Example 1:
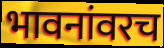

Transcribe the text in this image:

भावनांवरच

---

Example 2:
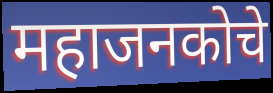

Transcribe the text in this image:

महाजनकोचे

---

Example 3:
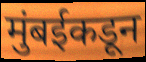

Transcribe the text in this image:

मुंबईकडून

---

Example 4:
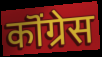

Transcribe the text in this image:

कॊंग्रेस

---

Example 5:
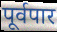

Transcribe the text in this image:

पूर्वपार